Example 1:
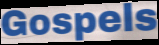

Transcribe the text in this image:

Gospels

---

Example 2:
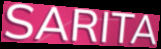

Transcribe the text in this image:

SARITA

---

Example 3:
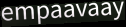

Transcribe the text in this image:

empaavaay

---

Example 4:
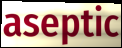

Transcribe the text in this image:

aseptic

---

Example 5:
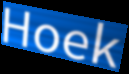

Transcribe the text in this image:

Hoek